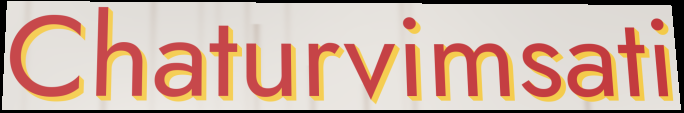
Chaturvimsati